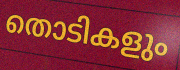
തൊടികളും